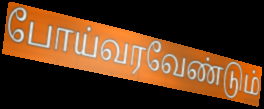
போய்வரவேண்டும்